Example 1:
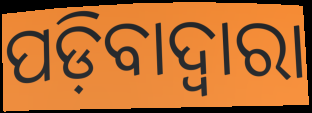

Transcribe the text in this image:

ପଡ଼ିବାଦ୍ୱାରା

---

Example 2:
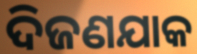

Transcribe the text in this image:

ଦିଜଣଯାକ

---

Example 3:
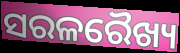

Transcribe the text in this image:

ସରଳରୈଖ୍ୟ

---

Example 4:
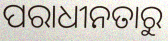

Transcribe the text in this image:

ପରାଧୀନତାରୁ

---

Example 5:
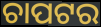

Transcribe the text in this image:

ଚାପଟର